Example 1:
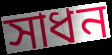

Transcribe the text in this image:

সাধন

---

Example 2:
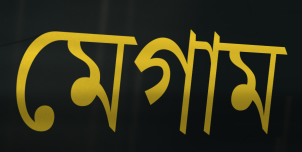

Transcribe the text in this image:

মেগাম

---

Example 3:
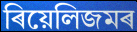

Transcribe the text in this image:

ৰিয়েলিজমৰ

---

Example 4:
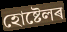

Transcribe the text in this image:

হোষ্টেলৰ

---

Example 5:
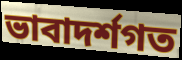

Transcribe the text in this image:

ভাবাদৰ্শগত